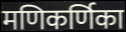
मणिकर्णिका